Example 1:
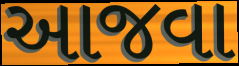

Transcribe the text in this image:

આજવા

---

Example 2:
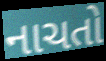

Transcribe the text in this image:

નાચતો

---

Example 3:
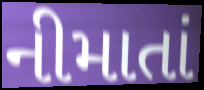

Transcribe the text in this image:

નીમાતાં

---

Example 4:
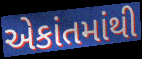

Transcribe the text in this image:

એકાંતમાંથી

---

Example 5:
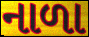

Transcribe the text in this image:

નાળા